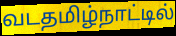
வடதமிழ்நாட்டில்